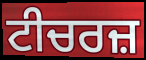
ਟੀਚਰਜ਼